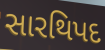
સારથિપદ